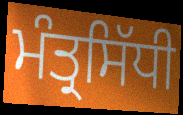
ਮੰਤ੍ਰਸਿੱਧੀ